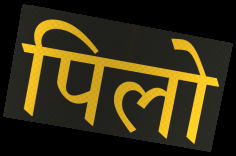
पिलो